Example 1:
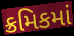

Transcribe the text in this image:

ક્રમિકમાં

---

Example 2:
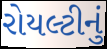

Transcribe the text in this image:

રોયલ્ટીનું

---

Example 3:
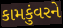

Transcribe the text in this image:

કામકુંવરને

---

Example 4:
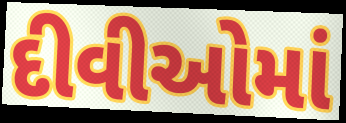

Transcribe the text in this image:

દીવીઓમાં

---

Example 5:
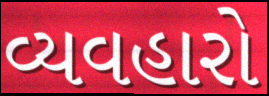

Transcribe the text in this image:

વ્યવહારો